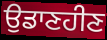
ਉਡਾਣਹੀਣ